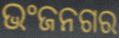
ଭଂଜନଗର